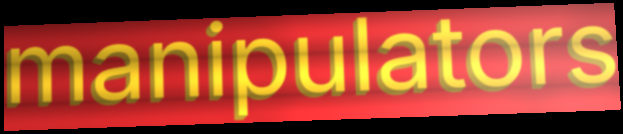
manipulators